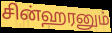
சின்ஹரனும்